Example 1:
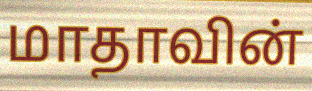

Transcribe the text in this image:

மாதாவின்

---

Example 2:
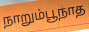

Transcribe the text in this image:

நாறும்பூநாத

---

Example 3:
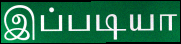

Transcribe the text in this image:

இப்படியா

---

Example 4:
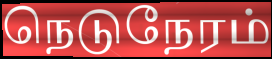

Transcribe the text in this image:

நெடுநேரம்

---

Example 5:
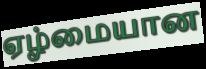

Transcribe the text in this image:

ஏழ்மையான